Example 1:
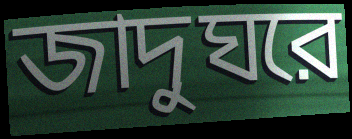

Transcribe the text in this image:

জাদুঘরে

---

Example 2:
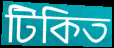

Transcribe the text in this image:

টিকিত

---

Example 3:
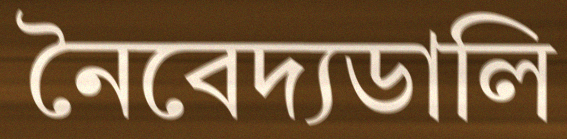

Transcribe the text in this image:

নৈবেদ্যডালি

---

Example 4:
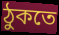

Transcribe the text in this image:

ঠুকতে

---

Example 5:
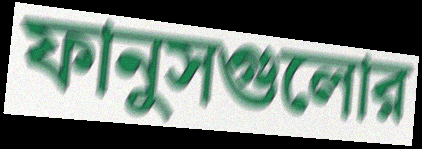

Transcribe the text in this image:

ফানুসগুলোর